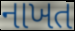
નાખત